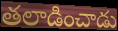
తలాడించాడు